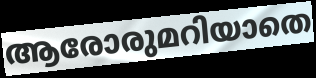
ആരോരുമറിയാതെ